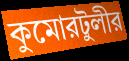
কুমোরটুলীর